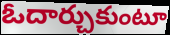
ఓదార్చుకుంటూ